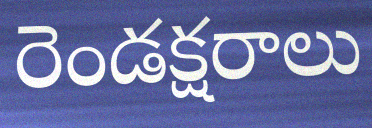
రెండక్షరాలు